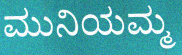
ಮುನಿಯಮ್ಮ